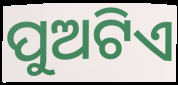
ପୁଅଟିଏ